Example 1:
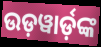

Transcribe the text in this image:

ଉଡ଼ୱାର୍ଡ଼ଙ୍କ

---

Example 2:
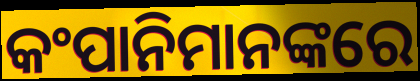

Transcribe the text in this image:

କଂପାନିମାନଙ୍କରେ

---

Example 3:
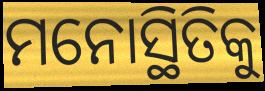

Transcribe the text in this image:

ମନୋସ୍ଥିତିକୁ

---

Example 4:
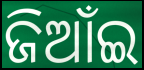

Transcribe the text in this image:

ଜିଆଁଇ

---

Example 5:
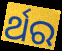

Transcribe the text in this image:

ର୍ଥର